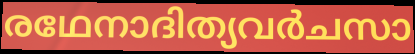
രഥേനാദിത്യവർചസാ